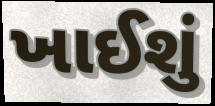
ખાઈશું